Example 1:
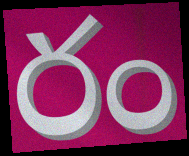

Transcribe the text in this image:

రం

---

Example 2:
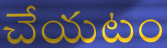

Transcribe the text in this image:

చేయటం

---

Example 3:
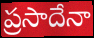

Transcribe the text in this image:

ప్రసాదేనా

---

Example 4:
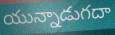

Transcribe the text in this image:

యున్నాడుగదా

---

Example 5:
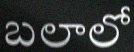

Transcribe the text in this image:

బలాలో